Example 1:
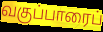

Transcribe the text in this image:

வகுப்பாரைப்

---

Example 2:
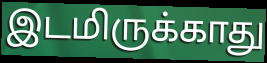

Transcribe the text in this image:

இடமிருக்காது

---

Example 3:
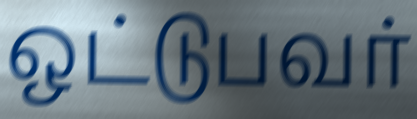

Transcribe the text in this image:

ஒட்டுபவர்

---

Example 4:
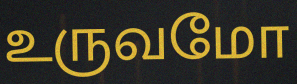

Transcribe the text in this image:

உருவமோ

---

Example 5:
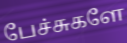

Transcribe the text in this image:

பேச்சுகளே